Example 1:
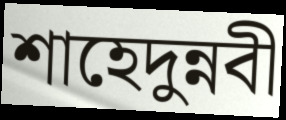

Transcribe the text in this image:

শাহেদুন্নবী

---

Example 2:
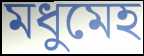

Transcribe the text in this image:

মধুমেহ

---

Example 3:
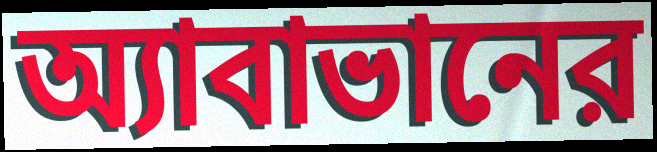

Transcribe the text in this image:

অ্যাবাভানের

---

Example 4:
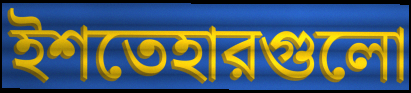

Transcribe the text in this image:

ইশতেহারগুলো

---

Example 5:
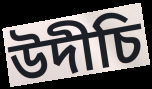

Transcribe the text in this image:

উদীচি